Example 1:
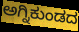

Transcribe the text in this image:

ಅಗ್ನಿಕುಂಡದ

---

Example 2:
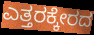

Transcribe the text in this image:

ಎತ್ತರಕ್ಕೇರದ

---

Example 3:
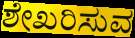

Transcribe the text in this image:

ಶೇಖರಿಸುವ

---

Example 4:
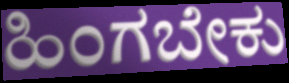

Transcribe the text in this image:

ಹಿಂಗಬೇಕು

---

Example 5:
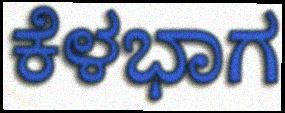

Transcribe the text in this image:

ಕೆಳಭಾಗ